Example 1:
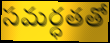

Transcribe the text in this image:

సమర్ధతతో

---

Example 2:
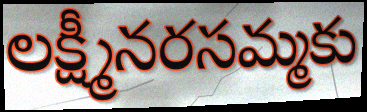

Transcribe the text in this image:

లక్ష్మీనరసమ్మకు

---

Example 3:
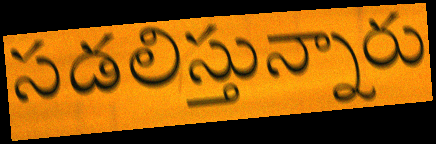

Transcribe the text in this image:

సడలిస్తున్నారు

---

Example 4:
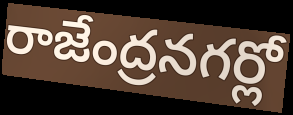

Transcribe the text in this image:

రాజేంద్రనగర్లో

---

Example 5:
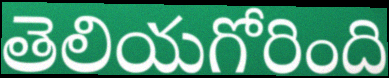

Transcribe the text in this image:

తెలియగోరింది